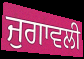
ਜੁਗਾਵਲੀ